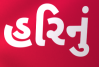
હરિનું